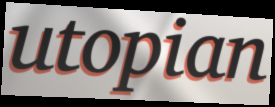
utopian